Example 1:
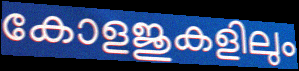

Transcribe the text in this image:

കോളജുകളിലും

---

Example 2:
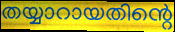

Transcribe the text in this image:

തയ്യാറായതിന്റെ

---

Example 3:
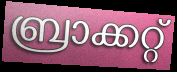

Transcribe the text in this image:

ബ്രാക്കറ്റ്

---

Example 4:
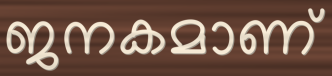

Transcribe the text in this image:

ജനകമാണ്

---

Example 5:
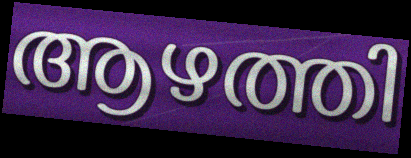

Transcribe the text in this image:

ആഴത്തി